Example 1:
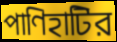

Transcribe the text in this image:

পাণিহাটির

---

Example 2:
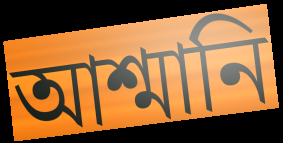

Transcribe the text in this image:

আশ্মানি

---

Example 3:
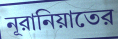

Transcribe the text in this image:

নূরানিয়াতের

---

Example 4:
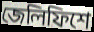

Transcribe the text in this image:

জেলিফিশে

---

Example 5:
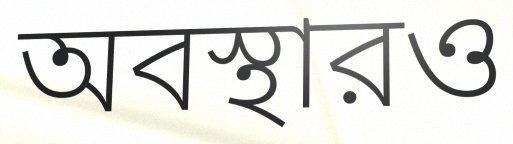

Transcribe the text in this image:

অবস্থারও